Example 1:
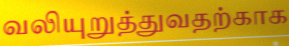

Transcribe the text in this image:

வலியுறுத்துவதற்காக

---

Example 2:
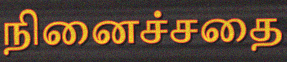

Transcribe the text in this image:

நினைச்சதை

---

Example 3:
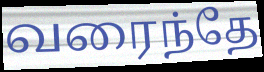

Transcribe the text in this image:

வரைந்தே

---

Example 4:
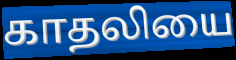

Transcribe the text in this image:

காதலியை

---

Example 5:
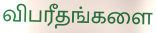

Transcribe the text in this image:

விபரீதங்களை